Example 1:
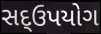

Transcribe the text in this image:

સદ્ઉપયોગ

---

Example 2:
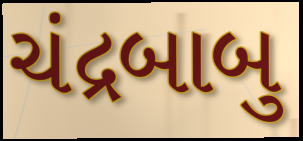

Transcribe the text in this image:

ચંદ્રબાબુ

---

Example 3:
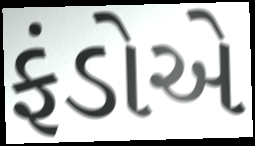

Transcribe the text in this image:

ફંડોએ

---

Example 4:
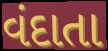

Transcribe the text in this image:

વંદાતા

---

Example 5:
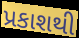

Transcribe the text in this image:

પ્રકાશથી